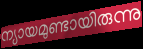
ന്യായമുണ്ടായിരുന്നു